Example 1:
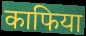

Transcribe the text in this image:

काफिया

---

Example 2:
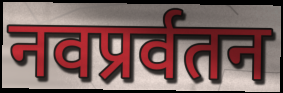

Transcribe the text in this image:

नवप्रर्वतन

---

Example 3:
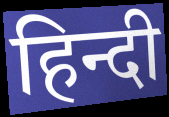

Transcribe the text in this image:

हिन्‍दी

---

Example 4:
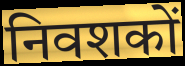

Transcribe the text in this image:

निवशकों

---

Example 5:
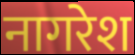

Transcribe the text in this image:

नागरेश